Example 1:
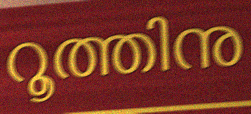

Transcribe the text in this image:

റൂത്തിനു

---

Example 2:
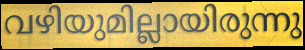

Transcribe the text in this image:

വഴിയുമില്ലായിരുന്നു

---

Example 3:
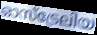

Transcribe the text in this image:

ഓസ്ട്രേലിയ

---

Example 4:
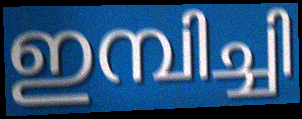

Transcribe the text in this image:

ഇമ്പിച്ചി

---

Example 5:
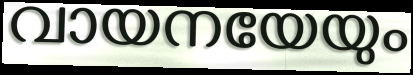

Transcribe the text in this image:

വായനയേയും